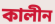
কালীন